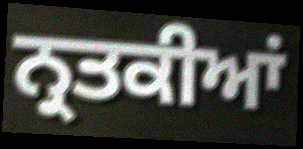
ਨ੍ਰਤਕੀਆਂ